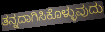
ತನ್ನದಾಗಿಸಿಕೊಳ್ಳುವುದು